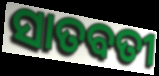
ସାତବତୀ